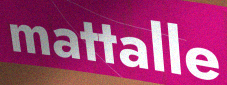
mattalle